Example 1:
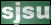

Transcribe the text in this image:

sjsu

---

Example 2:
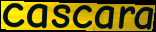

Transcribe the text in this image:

cascara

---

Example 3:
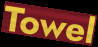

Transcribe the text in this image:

Towel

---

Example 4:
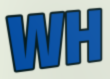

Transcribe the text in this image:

WH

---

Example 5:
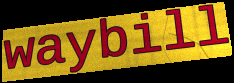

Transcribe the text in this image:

waybill